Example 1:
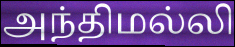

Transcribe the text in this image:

அந்திமல்லி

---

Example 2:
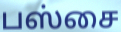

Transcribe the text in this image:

பஸ்சை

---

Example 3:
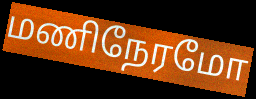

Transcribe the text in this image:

மணிநேரமோ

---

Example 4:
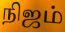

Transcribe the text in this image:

நிஜம்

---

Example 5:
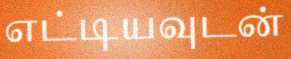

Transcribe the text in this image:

எட்டியவுடன்